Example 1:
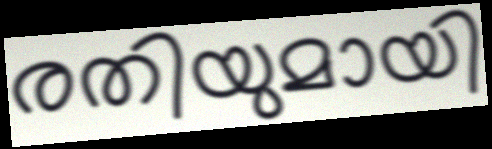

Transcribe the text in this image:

രതിയുമായി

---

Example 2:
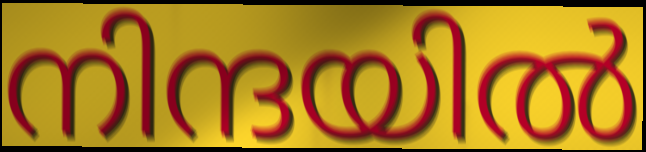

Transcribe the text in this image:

നിന്ദയിൽ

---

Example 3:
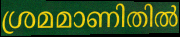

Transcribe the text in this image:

ശ്രമമാണിതിൽ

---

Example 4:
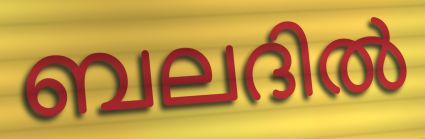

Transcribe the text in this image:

ബലദിൽ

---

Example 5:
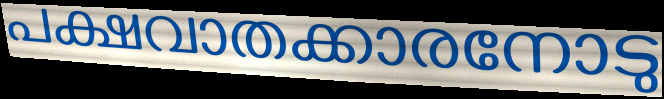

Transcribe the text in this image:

പക്ഷവാതക്കാരനോടു